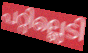
പറ്റില്ലെടി